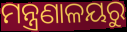
ମନ୍ତ୍ରଣାଳୟରୁ